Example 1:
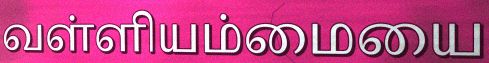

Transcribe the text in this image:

வள்ளியம்மையை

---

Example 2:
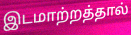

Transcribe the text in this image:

இடமாற்றத்தால்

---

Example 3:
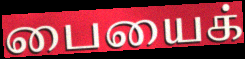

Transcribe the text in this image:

பையைக்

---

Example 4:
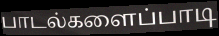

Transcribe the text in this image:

பாடல்களைப்பாடி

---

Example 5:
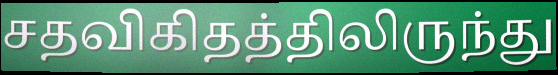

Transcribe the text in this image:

சதவிகிதத்திலிருந்து